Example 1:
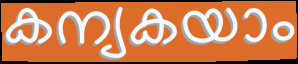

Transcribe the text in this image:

കന്യകയാം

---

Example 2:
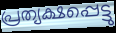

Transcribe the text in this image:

പ്രത്യക്ഷപ്പെട്ടു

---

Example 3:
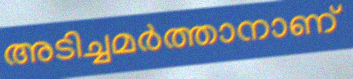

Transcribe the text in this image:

അടിച്ചമർത്താനാണ്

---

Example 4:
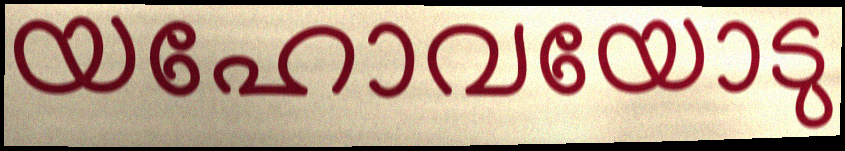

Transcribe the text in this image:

യഹോവയോടു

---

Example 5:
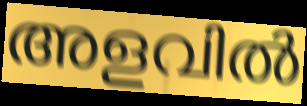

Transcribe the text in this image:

അളവിൽ